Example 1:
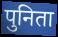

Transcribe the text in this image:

पुनिता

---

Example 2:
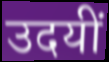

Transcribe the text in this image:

उदयीं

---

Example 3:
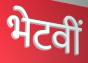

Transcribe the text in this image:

भेटवीं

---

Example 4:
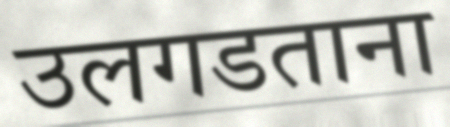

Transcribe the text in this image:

उलगडताना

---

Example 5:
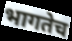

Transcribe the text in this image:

भागतेच